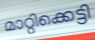
മാറ്റിക്കെട്ടി